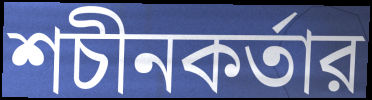
শচীনকর্তার